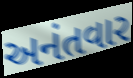
અનંતવાર